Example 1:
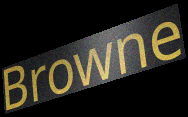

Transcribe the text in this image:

Browne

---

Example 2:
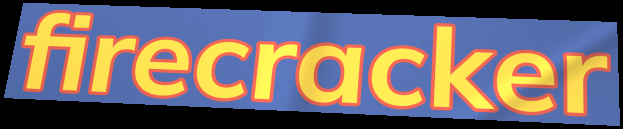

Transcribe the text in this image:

firecracker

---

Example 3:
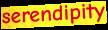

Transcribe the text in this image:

serendipity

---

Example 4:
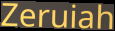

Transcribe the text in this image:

Zeruiah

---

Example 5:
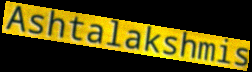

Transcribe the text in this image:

Ashtalakshmis